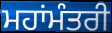
ਮਹਾਂਮੰਤਰੀ